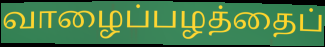
வாழைப்பழத்தைப்